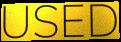
USED